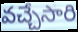
వచ్చేసారి